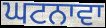
ਘਟਨਾਵਾ